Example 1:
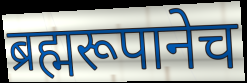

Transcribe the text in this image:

ब्रह्मरूपानेच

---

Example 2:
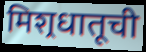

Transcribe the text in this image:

मिश्रधातूची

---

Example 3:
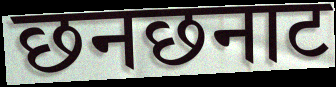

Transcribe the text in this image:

छनछनाट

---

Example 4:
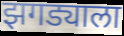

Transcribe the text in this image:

झगड्याला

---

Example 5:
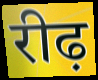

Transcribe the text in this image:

रीढ़